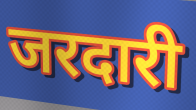
जरदारी